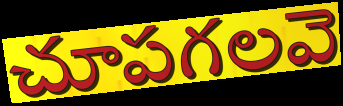
చూపగలవె